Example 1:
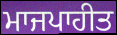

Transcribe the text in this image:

ਮਾਜਪਾਹੀਤ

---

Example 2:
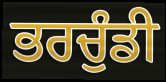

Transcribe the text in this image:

ਭਰਚੁੰਡੀ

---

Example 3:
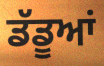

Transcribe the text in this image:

ਡੱਡੂਆਂ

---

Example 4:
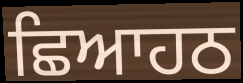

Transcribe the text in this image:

ਛਿਆਹਠ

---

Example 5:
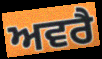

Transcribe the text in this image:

ਅਵਰੈ